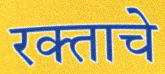
रक्ताचे